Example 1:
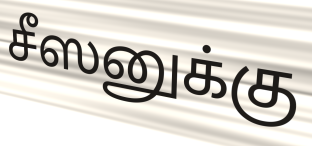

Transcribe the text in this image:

சீஸனுக்கு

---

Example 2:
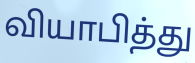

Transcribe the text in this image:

வியாபித்து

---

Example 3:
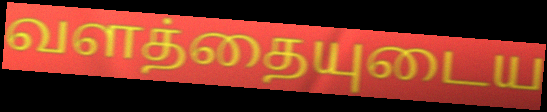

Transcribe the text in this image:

வளத்தையுடைய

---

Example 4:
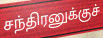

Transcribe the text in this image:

சந்திரனுக்குச்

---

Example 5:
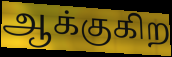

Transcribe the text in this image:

ஆக்குகிற